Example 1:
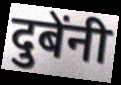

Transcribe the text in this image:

दुबेंनी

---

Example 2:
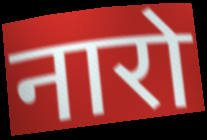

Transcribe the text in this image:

नारो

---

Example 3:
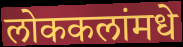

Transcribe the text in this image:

लोककलांमधे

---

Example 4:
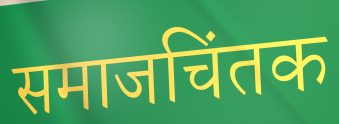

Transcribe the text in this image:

समाजचिंतक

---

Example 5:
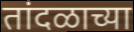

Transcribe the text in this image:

तांदळाच्या